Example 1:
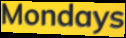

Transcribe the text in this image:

Mondays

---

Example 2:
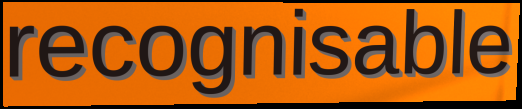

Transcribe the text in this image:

recognisable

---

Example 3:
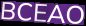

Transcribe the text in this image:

BCEAO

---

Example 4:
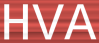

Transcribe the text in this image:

HVA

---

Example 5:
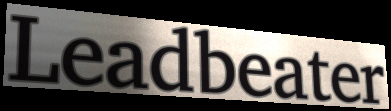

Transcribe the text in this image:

Leadbeater